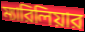
ম্যারিলিয়ার